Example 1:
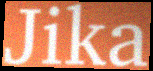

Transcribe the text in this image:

Jika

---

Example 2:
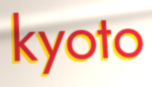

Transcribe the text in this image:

kyoto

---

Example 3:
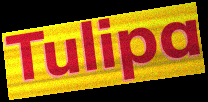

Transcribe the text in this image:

Tulipa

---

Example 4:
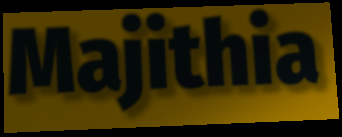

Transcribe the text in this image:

Majithia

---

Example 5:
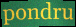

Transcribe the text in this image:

pondru